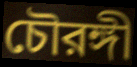
চৌরঙ্গী